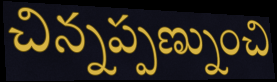
చిన్నప్పణ్నుంచి